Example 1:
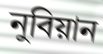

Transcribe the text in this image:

নুবিয়ান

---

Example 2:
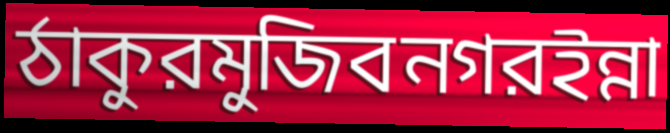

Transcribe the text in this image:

ঠাকুরমুজিবনগরইন্না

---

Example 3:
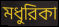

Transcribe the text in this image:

মধুরিকা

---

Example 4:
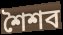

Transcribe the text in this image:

শৈশব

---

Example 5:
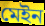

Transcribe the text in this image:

মেইন